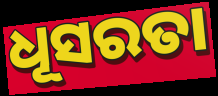
ଧୂସରତା